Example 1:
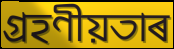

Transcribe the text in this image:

গ্ৰহণীয়তাৰ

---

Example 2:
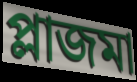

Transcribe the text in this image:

প্লাজমা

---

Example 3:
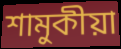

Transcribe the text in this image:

শামুকীয়া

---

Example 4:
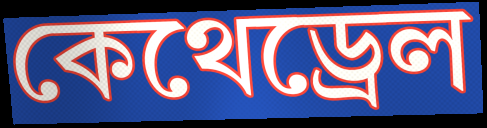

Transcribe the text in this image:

কেথেড্ৰেল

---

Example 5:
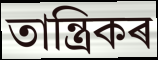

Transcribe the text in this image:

তান্ত্ৰিকৰ